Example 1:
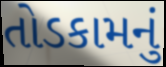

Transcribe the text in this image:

તોડકામનું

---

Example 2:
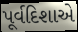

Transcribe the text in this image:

પૂર્વદિશાએ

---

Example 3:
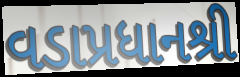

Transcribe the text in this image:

વડાપ્રધાનશ્રી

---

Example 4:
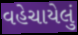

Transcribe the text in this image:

વહેચાયેલું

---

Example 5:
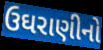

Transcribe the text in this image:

ઉઘરાણીનો